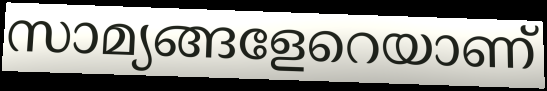
സാമ്യങ്ങളേറെയാണ്